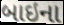
બાઇના